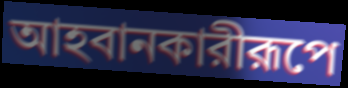
আহবানকারীরূপে